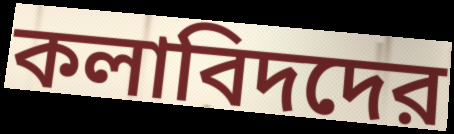
কলাবিদদের